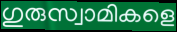
ഗുരുസ്വാമികളെ